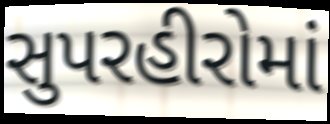
સુપરહીરોમાં